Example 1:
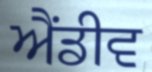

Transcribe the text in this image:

ਐਂਡੀਵ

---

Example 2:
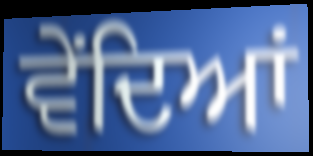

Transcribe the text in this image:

ਵੇਂਦਿਆਂ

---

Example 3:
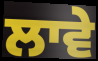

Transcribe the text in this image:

ਲਾਵੇ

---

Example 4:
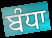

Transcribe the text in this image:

ਬੰਧਾ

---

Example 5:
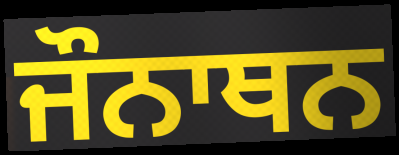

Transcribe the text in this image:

ਜੌਨਾਥਨ